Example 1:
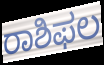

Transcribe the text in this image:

ರಾಶಿಫಲ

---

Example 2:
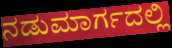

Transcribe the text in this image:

ನಡುಮಾರ್ಗದಲ್ಲಿ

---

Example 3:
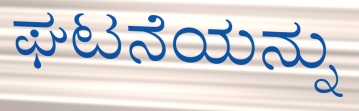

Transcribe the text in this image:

ಘಟನೆಯನ್ನು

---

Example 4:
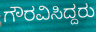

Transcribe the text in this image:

ಗೌರವಿಸಿದ್ದರು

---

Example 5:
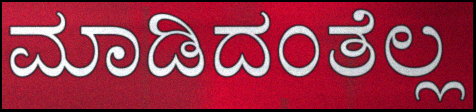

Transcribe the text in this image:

ಮಾಡಿದಂತೆಲ್ಲ